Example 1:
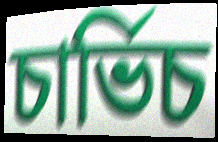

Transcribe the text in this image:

চাৰ্ভিচ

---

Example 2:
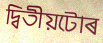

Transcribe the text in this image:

দ্বিতীয়টোৰ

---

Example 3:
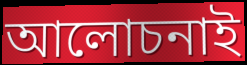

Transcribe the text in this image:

আলোচনাই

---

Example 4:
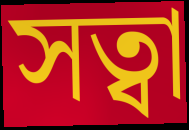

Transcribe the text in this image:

সত্বা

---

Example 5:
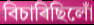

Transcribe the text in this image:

বিচাৰিছিলোঁ